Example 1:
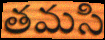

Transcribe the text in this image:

తమసి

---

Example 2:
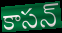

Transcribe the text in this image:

కాసన్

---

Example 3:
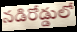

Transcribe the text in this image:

నడిరోడ్డులో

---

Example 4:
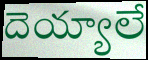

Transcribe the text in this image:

దెయ్యాలే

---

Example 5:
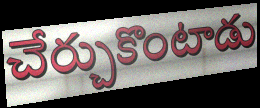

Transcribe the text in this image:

చేర్చుకొంటాడు